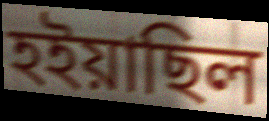
হইয়াছিল